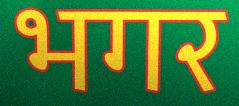
भगर